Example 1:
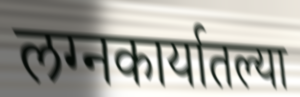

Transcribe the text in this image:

लग्नकार्यातल्या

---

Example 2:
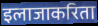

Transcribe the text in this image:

इलाजाकरिता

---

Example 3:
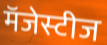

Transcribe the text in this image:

मॅजेस्टीज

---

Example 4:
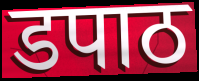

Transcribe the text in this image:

डपाठ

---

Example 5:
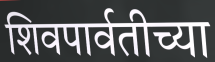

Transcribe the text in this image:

शिवपार्वतीच्या